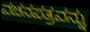
ವಚನಪತ್ರವನ್ನು